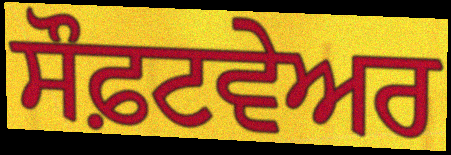
ਸੌਫ਼ਟਵੇਅਰ